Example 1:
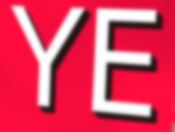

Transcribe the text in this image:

YE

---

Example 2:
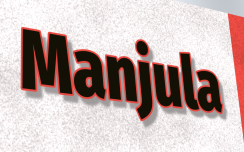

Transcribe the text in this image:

Manjula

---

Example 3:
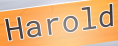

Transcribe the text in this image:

Harold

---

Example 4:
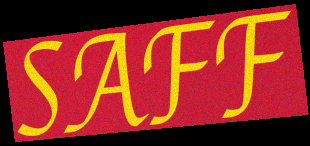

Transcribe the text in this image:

SAFF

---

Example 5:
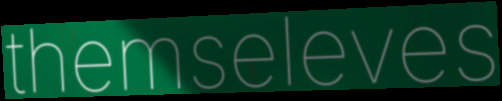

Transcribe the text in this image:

themseleves